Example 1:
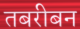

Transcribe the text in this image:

तबरीबन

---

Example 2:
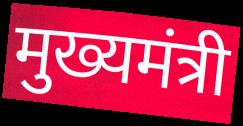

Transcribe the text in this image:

मुख्‍यमंत्री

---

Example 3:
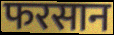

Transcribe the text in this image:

फरसान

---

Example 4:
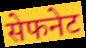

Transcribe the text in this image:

सेफनेट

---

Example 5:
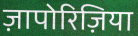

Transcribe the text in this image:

ज़ापोरिज़िया